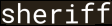
sheriff